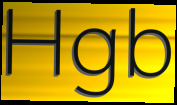
Hgb